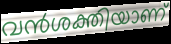
വൻശക്തിയാണ്